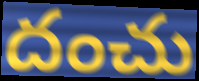
దంచు